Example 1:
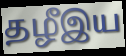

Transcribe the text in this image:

தழீஇய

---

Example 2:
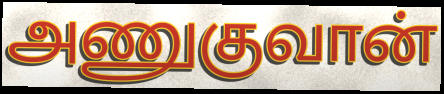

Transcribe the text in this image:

அணுகுவான்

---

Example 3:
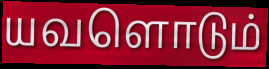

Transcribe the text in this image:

யவளொடும்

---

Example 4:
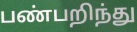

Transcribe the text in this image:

பண்பறிந்து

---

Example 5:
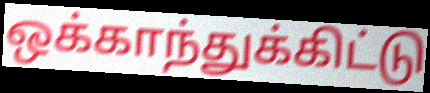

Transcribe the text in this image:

ஒக்காந்துக்கிட்டு